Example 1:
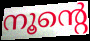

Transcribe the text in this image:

നൂന്റെ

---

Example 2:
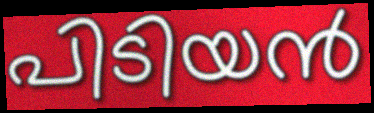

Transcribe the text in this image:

പിടിയൻ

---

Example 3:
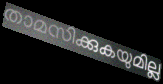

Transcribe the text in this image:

താമസിക്കുകയുമില്ല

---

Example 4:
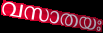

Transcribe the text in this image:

വസാതയഃ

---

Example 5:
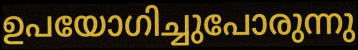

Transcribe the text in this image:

ഉപയോഗിച്ചുപോരുന്നു